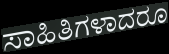
ಸಾಹಿತಿಗಳಾದರೂ